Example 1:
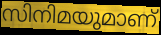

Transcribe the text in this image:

സിനിമയുമാണ്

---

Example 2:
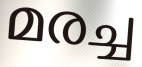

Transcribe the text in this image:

മരച്ച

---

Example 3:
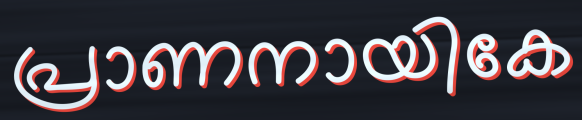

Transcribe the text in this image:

പ്രാണനായികേ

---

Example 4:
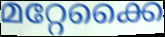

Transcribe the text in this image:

മറ്റേക്കൈ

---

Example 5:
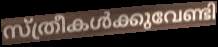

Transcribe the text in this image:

സ്ത്രീകൾക്കുവേണ്ടി